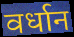
वर्धान